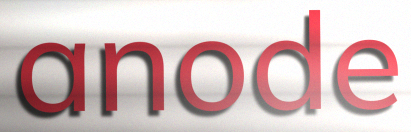
anode